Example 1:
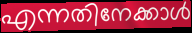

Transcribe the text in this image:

എന്നതിനേക്കാൾ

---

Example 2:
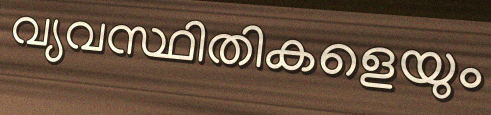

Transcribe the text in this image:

വ്യവസ്ഥിതികളെയും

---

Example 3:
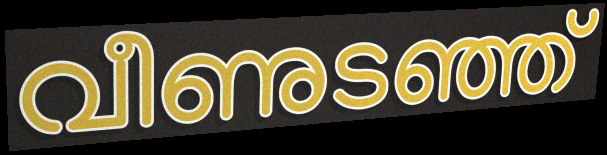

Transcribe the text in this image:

വീണുടഞ്ഞ്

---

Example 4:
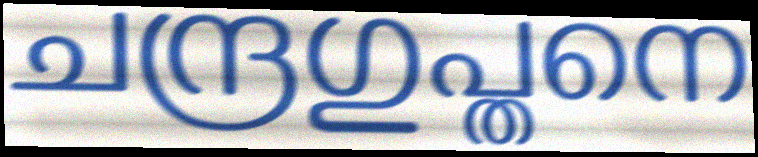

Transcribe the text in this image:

ചന്ദ്രഗുപ്തനെ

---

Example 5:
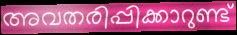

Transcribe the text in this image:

അവതരിപ്പിക്കാറുണ്ട്